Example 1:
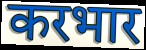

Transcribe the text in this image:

करभार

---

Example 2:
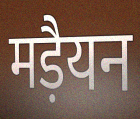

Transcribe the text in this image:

मड़ैयन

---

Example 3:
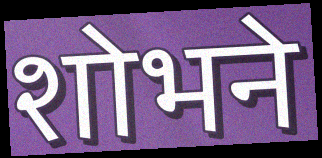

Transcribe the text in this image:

शोभने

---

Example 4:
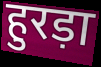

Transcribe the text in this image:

हुरड़ा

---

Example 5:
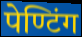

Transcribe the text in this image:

पेण्टिंग